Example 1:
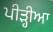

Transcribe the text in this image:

ਪੀੜ੍ਹੀਆ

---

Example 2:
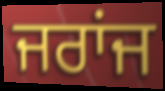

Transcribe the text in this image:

ਜਰਾਂਜ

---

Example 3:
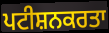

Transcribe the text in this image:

ਪਟੀਸ਼ਨਕਰਤਾ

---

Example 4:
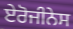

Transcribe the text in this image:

ਏਰੋਜੀਨੇਸ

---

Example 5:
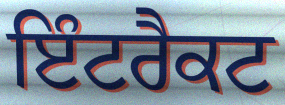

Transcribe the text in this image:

ਇੰਟਰੈਕਟ